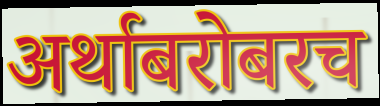
अर्थाबरोबरच